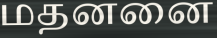
மதனனை